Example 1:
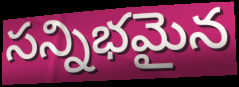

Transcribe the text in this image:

సన్నిభమైన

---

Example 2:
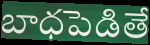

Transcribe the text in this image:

బాధపెడితే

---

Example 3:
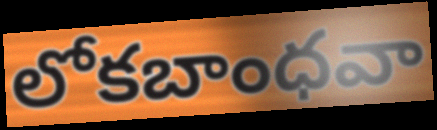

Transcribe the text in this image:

లోకబాంధవా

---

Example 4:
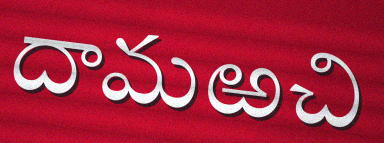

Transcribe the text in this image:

దామఱచి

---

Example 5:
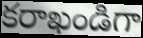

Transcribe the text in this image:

కరాఖండిగా